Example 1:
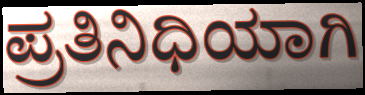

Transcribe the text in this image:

ಪ್ರತಿನಿಧಿಯಾಗಿ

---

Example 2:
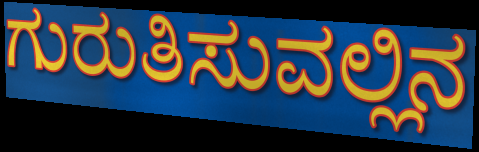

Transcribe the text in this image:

ಗುರುತಿಸುವಲ್ಲಿನ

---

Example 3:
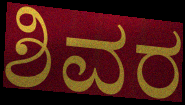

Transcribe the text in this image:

ಶಿವರ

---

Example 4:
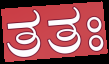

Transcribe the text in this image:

ತತಃ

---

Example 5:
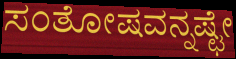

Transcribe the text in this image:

ಸಂತೋಷವನ್ನಷ್ಟೇ